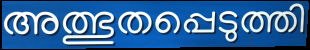
അത്ഭുതപ്പെടുത്തി